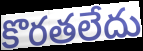
కొరతలేదు